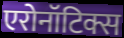
एरोनॉटिक्स